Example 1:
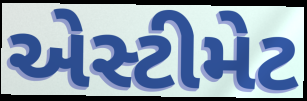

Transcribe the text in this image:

એસ્ટીમેટ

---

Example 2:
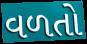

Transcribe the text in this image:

વળતો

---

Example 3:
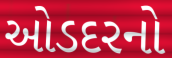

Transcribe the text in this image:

ઓડદરનો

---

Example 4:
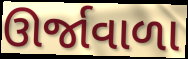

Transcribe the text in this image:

ઊર્જાવાળા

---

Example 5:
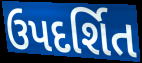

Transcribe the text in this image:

ઉપદર્શિત